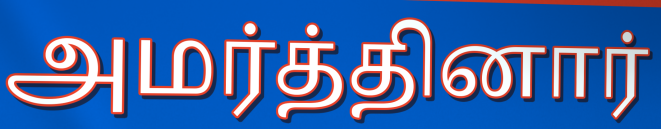
அமர்த்தினார்